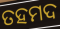
ତହମଦ